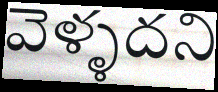
వెళ్ళదని